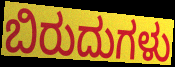
ಬಿರುದುಗಳು